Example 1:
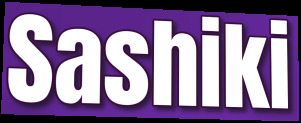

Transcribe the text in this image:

Sashiki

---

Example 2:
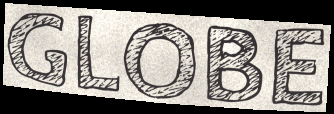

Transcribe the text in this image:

GLOBE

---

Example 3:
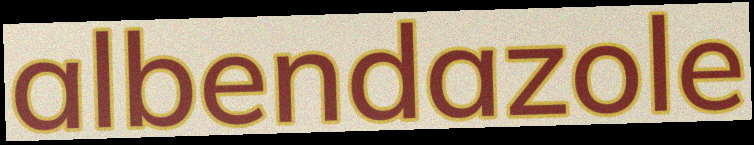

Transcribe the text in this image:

albendazole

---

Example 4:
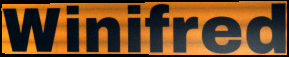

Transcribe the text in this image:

Winifred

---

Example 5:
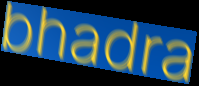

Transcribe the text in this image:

bhadra